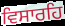
ਵਿਸਾਰਹਿ